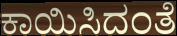
ಕಾಯಿಸಿದಂತೆ